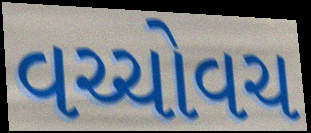
વચ્ચોવચ